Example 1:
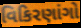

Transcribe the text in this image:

વિકિરણાંગો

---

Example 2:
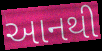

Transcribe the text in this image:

આનથી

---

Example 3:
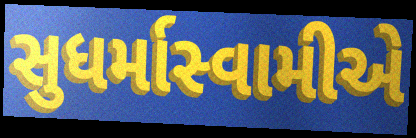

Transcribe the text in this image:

સુધર્માસ્વામીએ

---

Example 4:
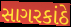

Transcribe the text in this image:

સાગરકાંઠે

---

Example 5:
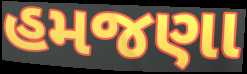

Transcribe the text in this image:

હમજણા